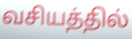
வசியத்தில்